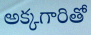
అక్కగారితో